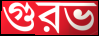
গুরভ